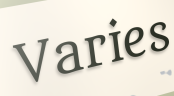
Varies